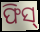
ଫିସ୍